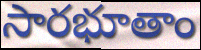
సారభూతాం